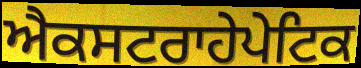
ਐਕਸਟਰਾਹੇਪੇਟਿਕ